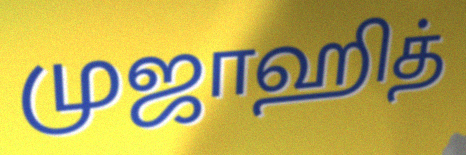
முஜாஹித்